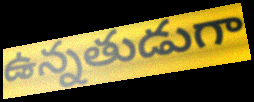
ఉన్నతుడుగా